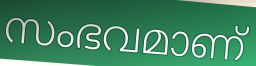
സംഭവമാണ്